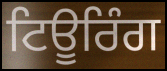
ਟਿਊਰਿੰਗ